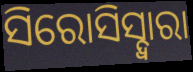
ସିରୋସିସ୍ଦ୍ୱାରା